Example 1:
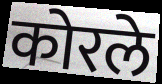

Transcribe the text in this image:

कोरले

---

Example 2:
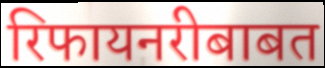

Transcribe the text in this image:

रिफायनरीबाबत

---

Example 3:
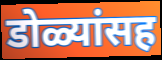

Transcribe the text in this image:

डोळ्यांसह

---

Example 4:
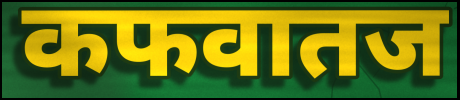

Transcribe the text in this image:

कफवातज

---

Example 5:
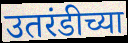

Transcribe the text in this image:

उतरंडीच्या